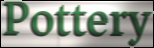
Pottery